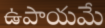
ఉపాయమే